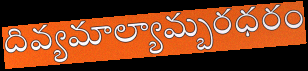
దివ్యమాల్యామ్బరధరం